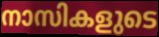
നാസികളുടെ